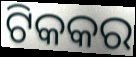
ଟିକକର